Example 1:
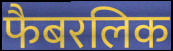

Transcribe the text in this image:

फैबरलिक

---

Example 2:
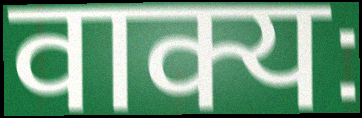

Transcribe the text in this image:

वाक्यः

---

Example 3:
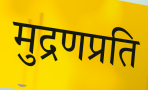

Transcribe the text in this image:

मुद्रणप्रति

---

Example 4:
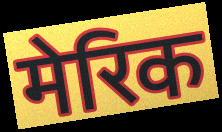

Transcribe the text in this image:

मेरिक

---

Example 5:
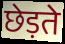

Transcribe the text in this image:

छेड़ते